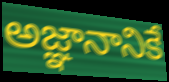
అజ్ఞానానికే